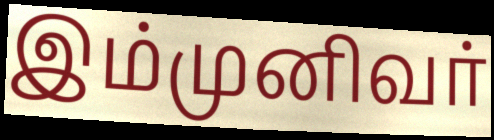
இம்முனிவர்